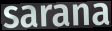
sarana